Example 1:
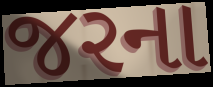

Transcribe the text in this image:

જરના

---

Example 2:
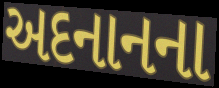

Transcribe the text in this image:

અદનાનના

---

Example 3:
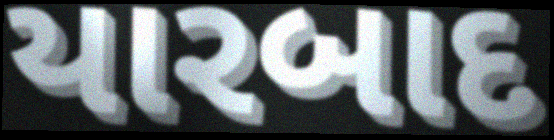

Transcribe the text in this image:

યારબાદ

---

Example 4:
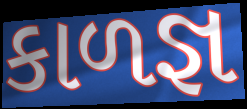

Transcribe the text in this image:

કાળજ્ઞ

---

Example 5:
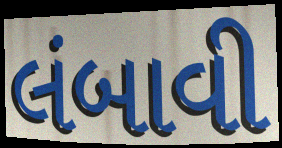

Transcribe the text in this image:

લંબાવી